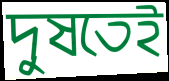
দুষতেই